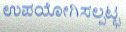
ಉಪಯೋಗಿಸಲ್ಪಟ್ಟ